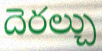
దెరల్చు